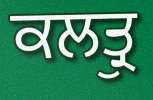
ਕਲਤ੍ਰੁ